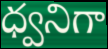
ధ్వనిగా